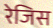
रेजिस